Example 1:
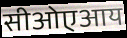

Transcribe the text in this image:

सीओएआय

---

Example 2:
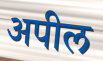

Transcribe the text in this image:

अपील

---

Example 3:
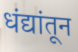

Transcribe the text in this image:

धंद्यांतून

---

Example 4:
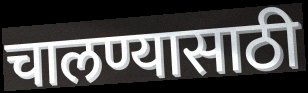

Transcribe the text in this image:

चालण्यासाठी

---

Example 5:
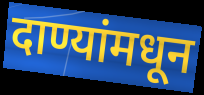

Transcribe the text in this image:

दाण्यांमधून